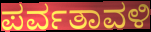
ಪರ್ವತಾವಳಿ